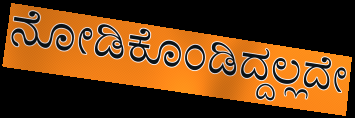
ನೋಡಿಕೊಂಡಿದ್ದಲ್ಲದೇ